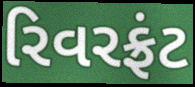
રિવરફ્રંટ